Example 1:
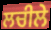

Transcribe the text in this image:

ਲਚੀਲੇ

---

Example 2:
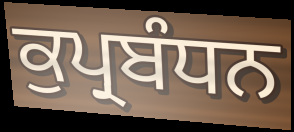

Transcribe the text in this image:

ਕੁਪ੍ਰਬੰਧਨ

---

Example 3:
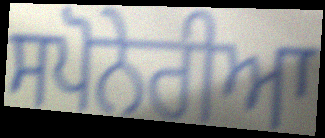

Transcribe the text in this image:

ਸਪੋਨੇਰੀਆ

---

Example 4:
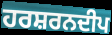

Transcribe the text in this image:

ਹਰਸ਼ਰਨਦੀਪ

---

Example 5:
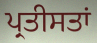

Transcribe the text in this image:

ਪ੍ਰਤੀਸਤਾਂ